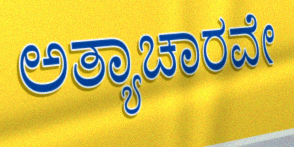
ಅತ್ಯಾಚಾರವೇ